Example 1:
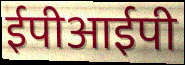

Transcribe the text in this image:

ईपीआईपी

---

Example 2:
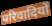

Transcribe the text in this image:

परिवादियों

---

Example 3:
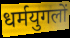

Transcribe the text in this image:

धर्मयुगलों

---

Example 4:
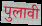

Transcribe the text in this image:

पुलावी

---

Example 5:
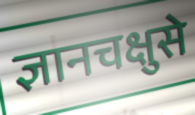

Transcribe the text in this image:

ज्ञानचक्षुसे